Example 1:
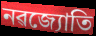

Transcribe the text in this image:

নৱজ্যোতি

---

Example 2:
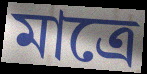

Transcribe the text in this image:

মাত্ৰে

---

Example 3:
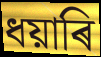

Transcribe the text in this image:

ধয়াৰি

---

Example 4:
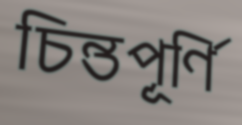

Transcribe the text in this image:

চিন্তপূৰ্ণি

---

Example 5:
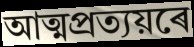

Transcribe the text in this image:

আত্মপ্ৰত্যয়ৰে